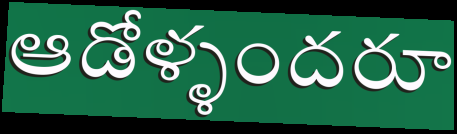
ఆడోళ్ళందరూ